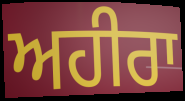
ਅਹੀਰਾ